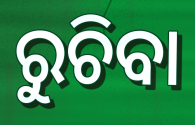
ରୁଚିବା